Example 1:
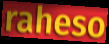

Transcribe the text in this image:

raheso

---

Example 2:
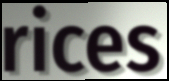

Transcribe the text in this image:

rices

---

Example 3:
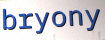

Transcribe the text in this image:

bryony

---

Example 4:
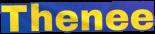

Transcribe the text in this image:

Thenee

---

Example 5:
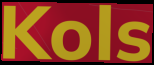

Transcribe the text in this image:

Kols